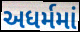
અધર્મમાં